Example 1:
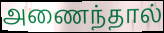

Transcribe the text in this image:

அணைந்தால்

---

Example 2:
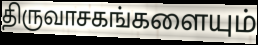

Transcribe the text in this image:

திருவாசகங்களையும்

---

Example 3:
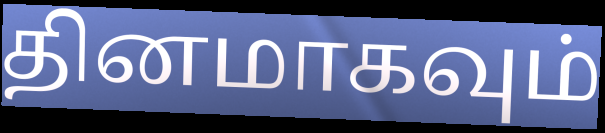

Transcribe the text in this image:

தினமாகவும்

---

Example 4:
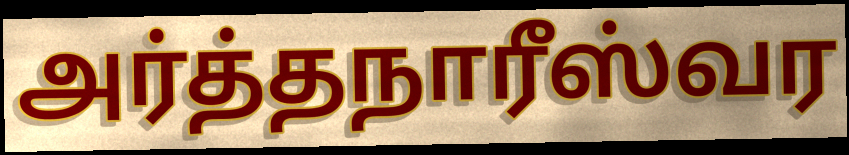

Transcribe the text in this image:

அர்த்தநாரீஸ்வர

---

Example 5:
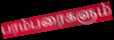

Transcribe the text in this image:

பரம்பரைகளும்